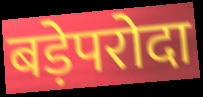
बड़ेपरोदा